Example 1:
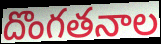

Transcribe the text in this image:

దొంగతనాల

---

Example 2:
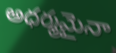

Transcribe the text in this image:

అధర్మమైనా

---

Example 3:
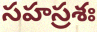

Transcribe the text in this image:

సహస్రశః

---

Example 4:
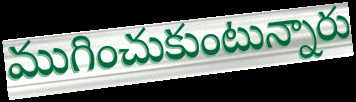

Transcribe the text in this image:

ముగించుకుంటున్నారు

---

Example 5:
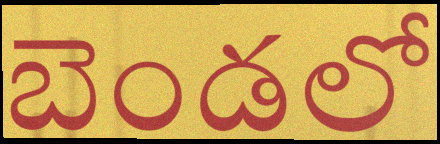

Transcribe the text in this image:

బెండలో